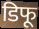
डिफू